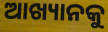
ଆଖ୍ୟାନକୁ